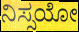
ನಿಸ್ಸಯೋ